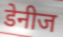
डेनीज